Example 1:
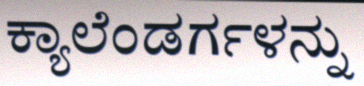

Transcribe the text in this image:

ಕ್ಯಾಲೆಂಡರ್ಗಳನ್ನು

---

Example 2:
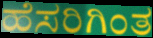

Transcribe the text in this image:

ಹೆಸರಿಗಿಂತ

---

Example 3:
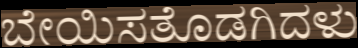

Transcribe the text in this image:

ಬೇಯಿಸತೊಡಗಿದಳು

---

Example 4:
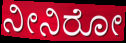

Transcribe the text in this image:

ನೀನಿರೋ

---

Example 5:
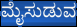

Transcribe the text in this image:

ಮೈಸುಡುವ